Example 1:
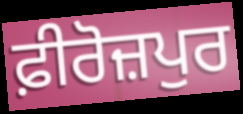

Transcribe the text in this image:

ਫ਼ੀਰੋਜ਼ਪੁਰ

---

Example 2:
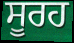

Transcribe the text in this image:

ਸੂਰਹ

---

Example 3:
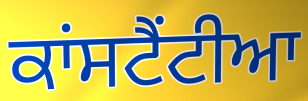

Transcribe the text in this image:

ਕਾਂਸਟੈਂਟੀਆ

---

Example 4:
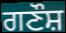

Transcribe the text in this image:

ਗਣੌਸ਼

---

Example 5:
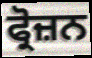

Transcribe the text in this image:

ਫ੍ਰੋਜ਼ਨ